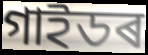
গাইডৰ